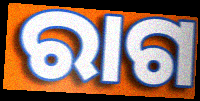
ରାଗ